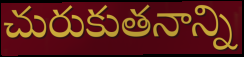
చురుకుతనాన్ని